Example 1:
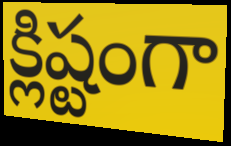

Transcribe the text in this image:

క్లిష్టంగా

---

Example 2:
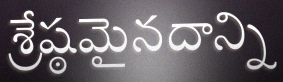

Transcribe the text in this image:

శ్రేష్ఠమైనదాన్ని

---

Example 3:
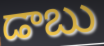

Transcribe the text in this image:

డాబు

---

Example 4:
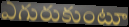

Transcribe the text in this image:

ఎగురుకుంటూ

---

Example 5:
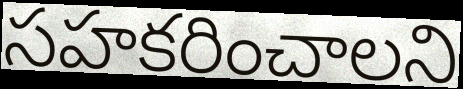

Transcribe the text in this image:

సహకరించాలని